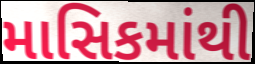
માસિકમાંથી